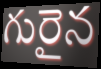
గురైన